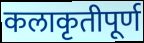
कलाकृतीपूर्ण